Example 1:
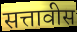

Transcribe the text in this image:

सत्तावीस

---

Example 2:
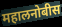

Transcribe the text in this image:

महालनोबीस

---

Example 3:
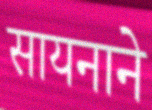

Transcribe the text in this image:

सायनाने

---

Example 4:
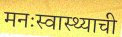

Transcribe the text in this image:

मनःस्वास्थ्याची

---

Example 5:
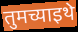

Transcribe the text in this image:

तुमच्याइथे